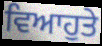
ਵਿਆਹੁਤੇ